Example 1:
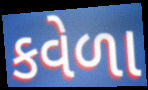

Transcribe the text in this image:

કવેળા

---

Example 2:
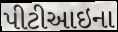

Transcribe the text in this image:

પીટીઆઇના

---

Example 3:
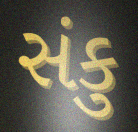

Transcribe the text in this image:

સંકુ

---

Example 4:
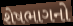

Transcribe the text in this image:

શેષભાગનો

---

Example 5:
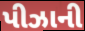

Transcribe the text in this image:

પીઝાની